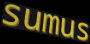
sumus